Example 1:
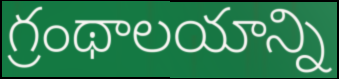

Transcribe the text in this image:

గ్రంథాలయాన్ని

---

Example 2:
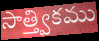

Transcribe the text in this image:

సాత్త్వికము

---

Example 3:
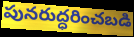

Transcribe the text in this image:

పునరుద్ధరించబడి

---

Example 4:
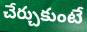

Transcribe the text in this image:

చేర్చుకుంటే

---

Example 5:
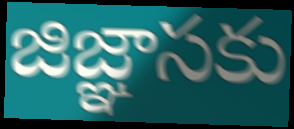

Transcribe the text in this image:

జిజ్ఞాసకు